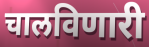
चालविणारी